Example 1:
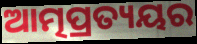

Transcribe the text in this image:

ଆତ୍ମପ୍ରତ୍ୟୟର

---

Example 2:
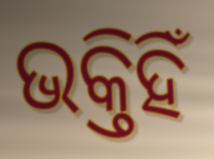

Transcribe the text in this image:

ଭକ୍ତିହିଁ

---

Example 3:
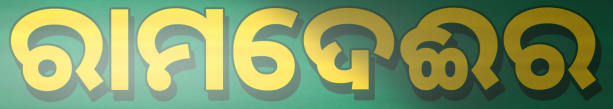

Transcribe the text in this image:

ରାମଦେଈର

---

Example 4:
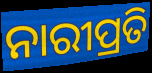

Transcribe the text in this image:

ନାରୀପ୍ରତି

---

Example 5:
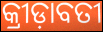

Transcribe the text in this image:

କ୍ରୀଡ଼ାବତୀ